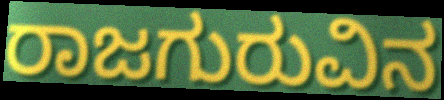
ರಾಜಗುರುವಿನ